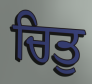
ਚਿਤੁ